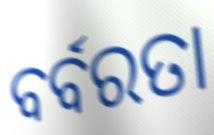
ବର୍ବରତା